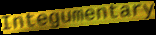
Integumentary